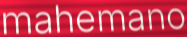
mahemano